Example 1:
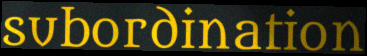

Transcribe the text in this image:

subordination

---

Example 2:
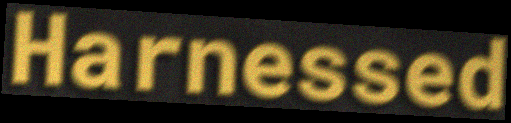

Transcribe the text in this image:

Harnessed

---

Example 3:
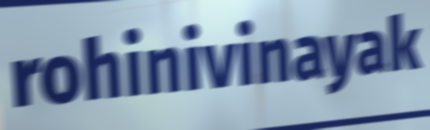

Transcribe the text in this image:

rohinivinayak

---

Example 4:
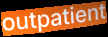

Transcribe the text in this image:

outpatient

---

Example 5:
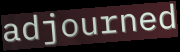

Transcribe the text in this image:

adjourned